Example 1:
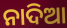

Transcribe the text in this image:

ନାଦିଆ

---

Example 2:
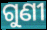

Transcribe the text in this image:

ଗୁଣୀ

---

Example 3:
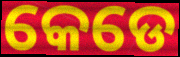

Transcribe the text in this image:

କେଡେ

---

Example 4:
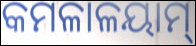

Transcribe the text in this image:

କମଳାଳୟାମ୍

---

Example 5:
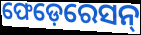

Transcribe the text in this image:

ଫେଡ଼େରେସନ୍